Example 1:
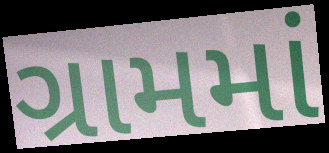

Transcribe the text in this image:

ગ્રામમાં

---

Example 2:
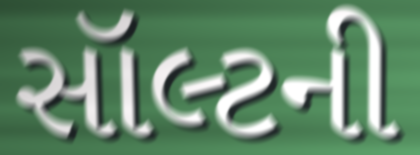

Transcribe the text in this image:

સૉલ્ટની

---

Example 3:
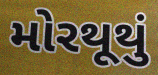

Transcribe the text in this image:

મોરથૂથું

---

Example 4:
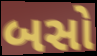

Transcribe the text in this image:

બસો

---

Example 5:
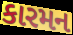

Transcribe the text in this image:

કારમન